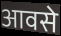
आवसे